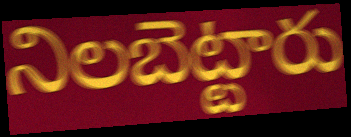
నిలబెట్టారు